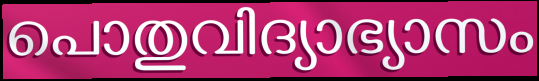
പൊതുവിദ്യാഭ്യാസം